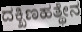
ದಕ್ಖಿಣಹತ್ಥೇನ